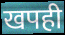
खपही